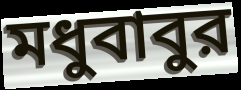
মধুবাবুর